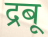
द्रबू